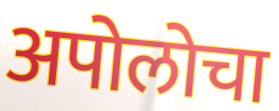
अपोलोचा